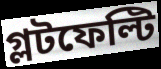
গ্লটফেল্টি